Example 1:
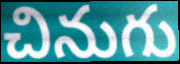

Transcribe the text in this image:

చినుగు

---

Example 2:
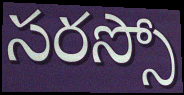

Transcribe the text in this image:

సరస్సో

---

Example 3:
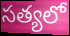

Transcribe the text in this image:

సత్యలో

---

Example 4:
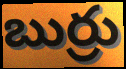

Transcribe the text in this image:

బుర్రు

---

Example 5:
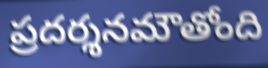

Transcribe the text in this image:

ప్రదర్శనమౌతోంది